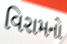
વિરામનો